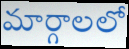
మార్గాలలో